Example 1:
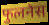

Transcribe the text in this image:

फुलनेस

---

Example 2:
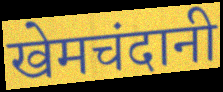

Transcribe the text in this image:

खेमचंदानी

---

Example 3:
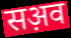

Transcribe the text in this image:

सअ़व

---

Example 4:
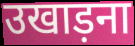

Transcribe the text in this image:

उखाड़ना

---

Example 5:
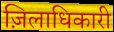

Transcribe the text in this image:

ज़िलाधिकारी